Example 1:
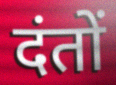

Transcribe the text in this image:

दंतों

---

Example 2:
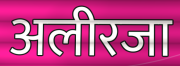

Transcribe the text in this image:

अलीरजा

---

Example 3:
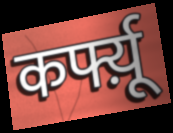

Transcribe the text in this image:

कर्फ्य़ू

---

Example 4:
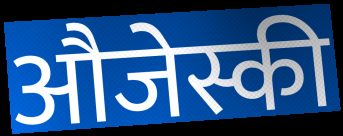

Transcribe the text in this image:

औजेस्की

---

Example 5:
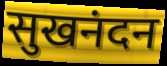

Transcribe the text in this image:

सुखनंदन